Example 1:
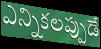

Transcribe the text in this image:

ఎన్నికలప్పుడే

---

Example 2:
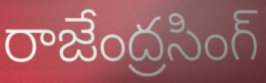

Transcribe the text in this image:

రాజేంద్రసింగ్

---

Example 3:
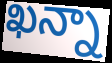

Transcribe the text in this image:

ఖన్నా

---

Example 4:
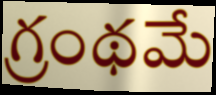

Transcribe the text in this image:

గ్రంథమే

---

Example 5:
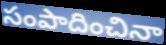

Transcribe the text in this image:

సంపాదించినా